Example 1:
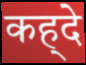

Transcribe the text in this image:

कह्दे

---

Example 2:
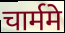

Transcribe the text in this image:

चार्ममे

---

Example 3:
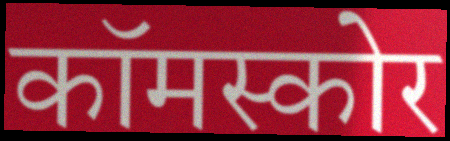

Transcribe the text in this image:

कॉमस्कोर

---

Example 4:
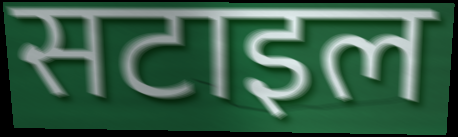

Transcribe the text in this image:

सटाइल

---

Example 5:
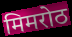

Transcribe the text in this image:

मिमरोठ